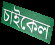
চাইকেল